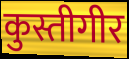
कुस्तीगीर